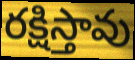
రక్షిస్తావు